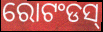
ରୋଟଂଡସ୍